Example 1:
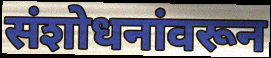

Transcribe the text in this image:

संशोधनांवरून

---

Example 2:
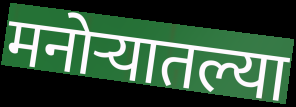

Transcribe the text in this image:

मनोर्‍यातल्या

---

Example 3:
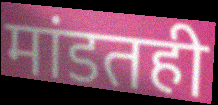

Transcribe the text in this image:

मांडतही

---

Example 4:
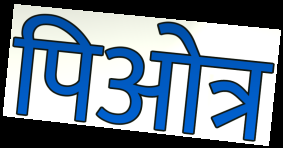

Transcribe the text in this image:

पिओत्र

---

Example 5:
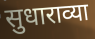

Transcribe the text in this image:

सुधाराव्या